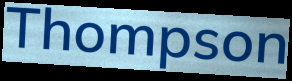
Thompson